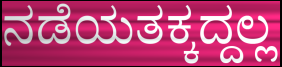
ನಡೆಯತಕ್ಕದ್ದಲ್ಲ